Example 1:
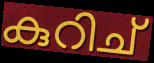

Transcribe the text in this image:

കുറിച്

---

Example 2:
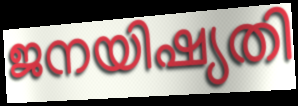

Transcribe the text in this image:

ജനയിഷ്യതി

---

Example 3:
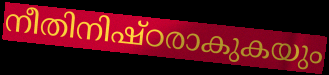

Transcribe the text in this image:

നീതിനിഷ്ഠരാകുകയും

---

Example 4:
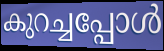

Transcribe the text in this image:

കുറച്ചപ്പോൾ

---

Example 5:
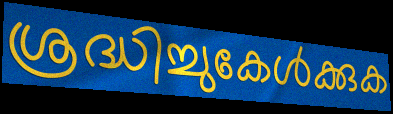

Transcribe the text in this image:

ശ്രദ്ധിച്ചുകേൾക്കുക